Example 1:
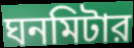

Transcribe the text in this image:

ঘনমিটার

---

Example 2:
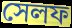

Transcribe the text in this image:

সেলফ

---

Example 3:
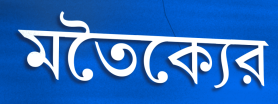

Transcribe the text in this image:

মতৈক্যের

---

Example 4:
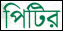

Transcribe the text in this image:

পিটির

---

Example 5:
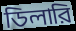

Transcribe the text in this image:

ডিলারি